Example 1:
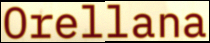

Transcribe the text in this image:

Orellana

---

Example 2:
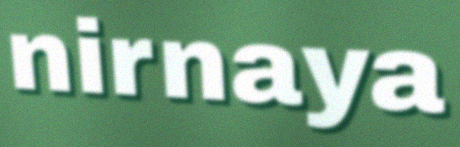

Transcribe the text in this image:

nirnaya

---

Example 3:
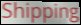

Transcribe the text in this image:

Shipping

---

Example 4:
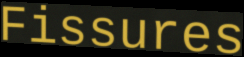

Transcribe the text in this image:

Fissures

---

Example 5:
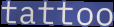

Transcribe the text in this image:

tattoo